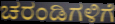
ಚರಂಡಿಗಳಿಗೆ